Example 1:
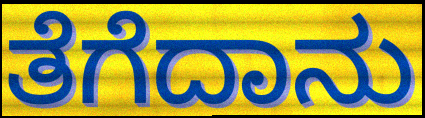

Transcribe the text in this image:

ತೆಗೆದಾನು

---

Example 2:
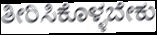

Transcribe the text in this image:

ತೀರಿಸಿಕೊಳ್ಳಬೇಕು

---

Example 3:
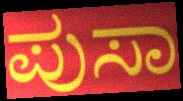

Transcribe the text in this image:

ಪುಸಾ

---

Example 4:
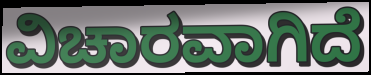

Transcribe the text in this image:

ವಿಚಾರವಾಗಿದೆ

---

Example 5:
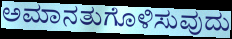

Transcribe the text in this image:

ಅಮಾನತುಗೊಳಿಸುವುದು